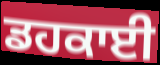
ਡਹਕਾਈ